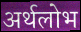
अर्थलोभ